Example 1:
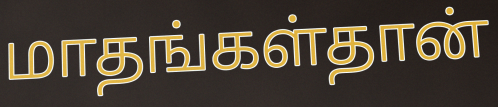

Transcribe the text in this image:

மாதங்கள்தான்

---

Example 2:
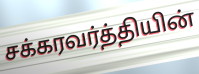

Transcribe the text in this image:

சக்கரவர்த்தியின்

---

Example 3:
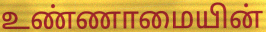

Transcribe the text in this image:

உண்ணாமையின்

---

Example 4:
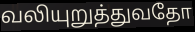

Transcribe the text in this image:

வலியுறுத்துவதோ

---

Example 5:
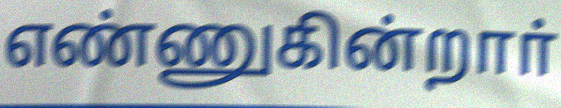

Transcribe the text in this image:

எண்ணுகின்றார்